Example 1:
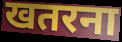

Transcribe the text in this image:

खतरना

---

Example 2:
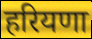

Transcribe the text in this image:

हरियणा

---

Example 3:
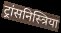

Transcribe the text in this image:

ट्रांसनिस्त्रिया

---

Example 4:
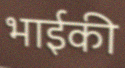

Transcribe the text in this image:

भाईकी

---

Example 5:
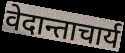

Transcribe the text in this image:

वेदान्ताचार्य